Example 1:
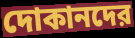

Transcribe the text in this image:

দোকানদের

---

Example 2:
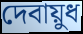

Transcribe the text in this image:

দেবায়ুধ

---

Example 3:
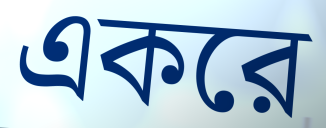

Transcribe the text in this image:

একরে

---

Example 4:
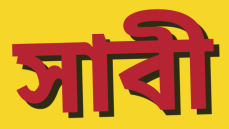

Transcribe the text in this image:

সাবী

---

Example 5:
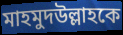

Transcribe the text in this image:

মাহমুদউল্লাহকে